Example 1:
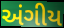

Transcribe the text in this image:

અંગીય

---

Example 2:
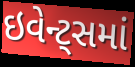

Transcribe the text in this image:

ઇવેન્ટ્સમાં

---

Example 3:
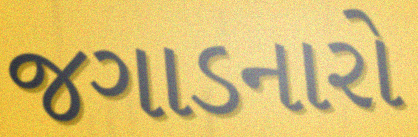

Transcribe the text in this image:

જગાડનારો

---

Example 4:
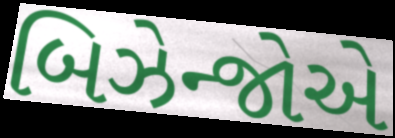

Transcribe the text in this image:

બિઝેન્જોએ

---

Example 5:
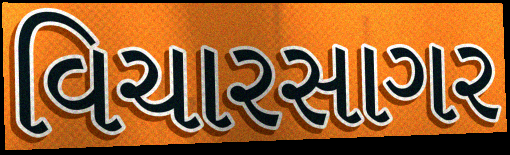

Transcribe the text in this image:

વિચારસાગર